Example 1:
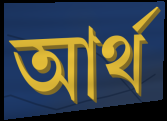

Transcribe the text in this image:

আৰ্থ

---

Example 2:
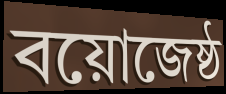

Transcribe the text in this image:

বয়োজেষ্ঠ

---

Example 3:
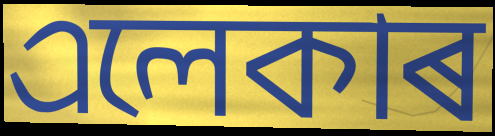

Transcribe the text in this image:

এলেকাৰ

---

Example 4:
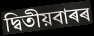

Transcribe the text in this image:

দ্বিতীয়বাৰৰ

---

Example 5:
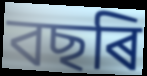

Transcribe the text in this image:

বছৰি